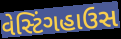
વેસ્ટિંગહાઉસ